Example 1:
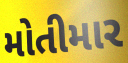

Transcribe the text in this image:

મોતીમાર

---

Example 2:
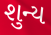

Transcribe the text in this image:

શુન્ય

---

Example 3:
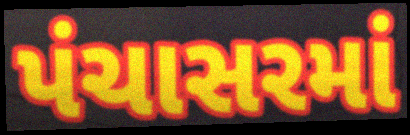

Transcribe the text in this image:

પંચાસરમાં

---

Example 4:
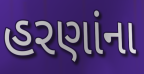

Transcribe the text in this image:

હરણાંના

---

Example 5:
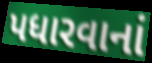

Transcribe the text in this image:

પધારવાનાં